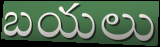
బయలు